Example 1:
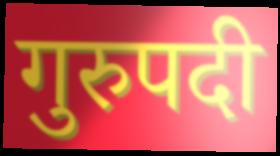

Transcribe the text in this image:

गुरुपदी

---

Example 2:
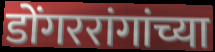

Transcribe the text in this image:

डोंगररांगांच्या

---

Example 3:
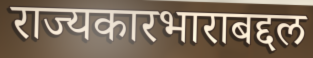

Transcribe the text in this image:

राज्यकारभाराबद्दल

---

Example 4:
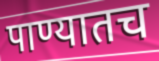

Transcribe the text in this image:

पाण्यातच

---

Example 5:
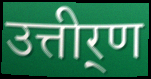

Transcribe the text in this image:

उत्तीर्ण